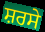
ਸ਼ਰਸੇ